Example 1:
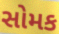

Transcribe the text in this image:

સોમક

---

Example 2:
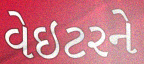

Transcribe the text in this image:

વેઇટરને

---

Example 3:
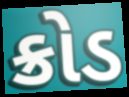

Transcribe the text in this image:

ક્રોડ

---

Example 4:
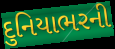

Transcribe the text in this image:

દુનિયાભરની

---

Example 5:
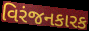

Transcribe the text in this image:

વિરંજનકારક